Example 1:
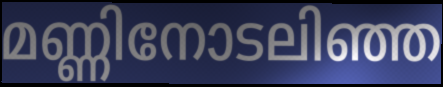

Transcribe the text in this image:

മണ്ണിനോടലിഞ്ഞ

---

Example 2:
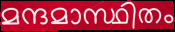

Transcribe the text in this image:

മന്ദമാസ്ഥിതം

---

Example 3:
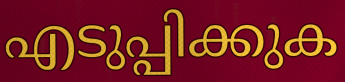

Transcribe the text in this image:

എടുപ്പിക്കുക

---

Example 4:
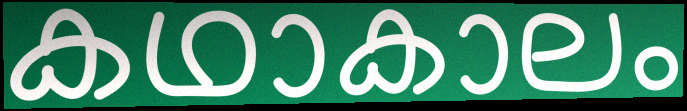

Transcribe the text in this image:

കഥാകാലം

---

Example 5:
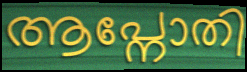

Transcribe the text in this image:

ആപ്നോതി